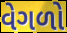
વેગળો